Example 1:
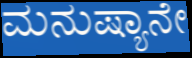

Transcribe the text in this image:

ಮನುಷ್ಯಾನೇ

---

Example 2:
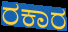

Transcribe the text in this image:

ರಕಾರ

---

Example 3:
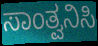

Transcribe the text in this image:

ಸಾಂತ್ವನಿಸಿ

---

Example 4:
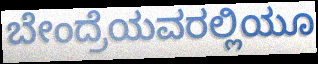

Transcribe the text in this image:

ಬೇಂದ್ರೆಯವರಲ್ಲಿಯೂ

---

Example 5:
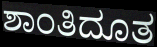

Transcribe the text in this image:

ಶಾಂತಿದೂತ